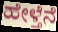
ಹೇಳ್ತೆನೆ